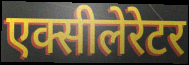
एक्सीलेरेटर